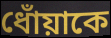
ধোঁয়াকে